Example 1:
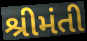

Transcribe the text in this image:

શ્રીમંતી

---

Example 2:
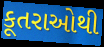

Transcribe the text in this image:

કૂતરાઓથી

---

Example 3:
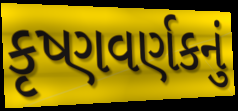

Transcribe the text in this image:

કૃષ્ણવર્ણકનું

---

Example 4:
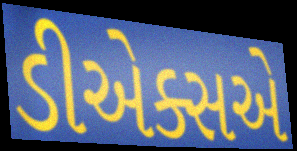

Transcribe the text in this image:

ડીએક્સએ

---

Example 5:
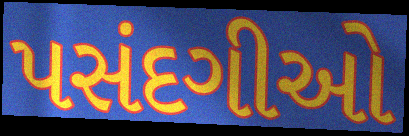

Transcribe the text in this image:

પસંદગીઓ